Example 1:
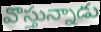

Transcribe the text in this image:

వొస్తున్నాడు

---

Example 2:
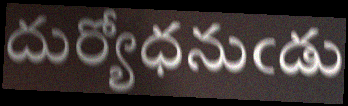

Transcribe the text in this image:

దుర్యోధనుఁడు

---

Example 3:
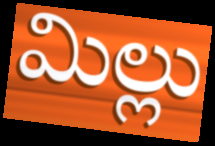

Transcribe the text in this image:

మిల్లు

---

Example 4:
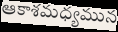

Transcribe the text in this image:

ఆకాశమధ్యమున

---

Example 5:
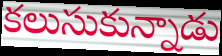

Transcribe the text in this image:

కలుసుకున్నాడు